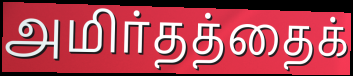
அமிர்தத்தைக்